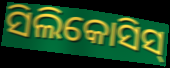
ସିଲିକୋସିସ୍